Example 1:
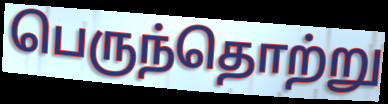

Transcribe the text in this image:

பெருந்தொற்று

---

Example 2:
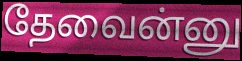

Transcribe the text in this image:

தேவைன்னு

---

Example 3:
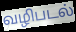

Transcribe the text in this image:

வழிபடல்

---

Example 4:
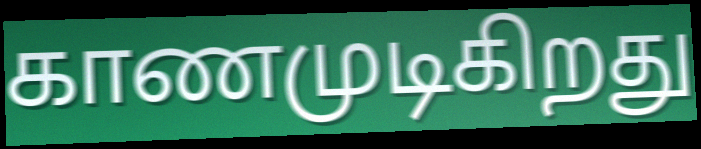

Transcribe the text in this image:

காணமுடிகிறது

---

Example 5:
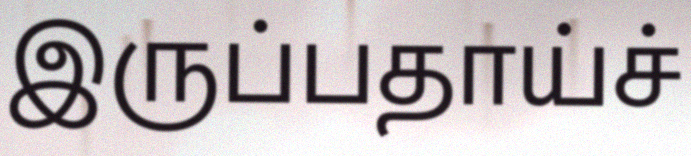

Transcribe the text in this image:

இருப்பதாய்ச்